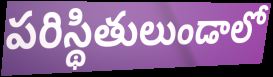
పరిస్థితులుండాలో